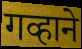
गव्हाने